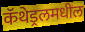
कॅथेड्रलमधील